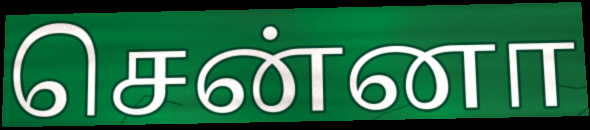
சென்னா